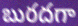
బురదగా